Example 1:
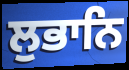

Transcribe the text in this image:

ਲੁਭਾਨਿ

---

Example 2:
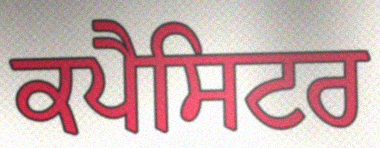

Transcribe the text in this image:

ਕਪੈਸਿਟਰ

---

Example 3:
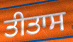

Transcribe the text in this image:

ਤੀਤਾਸ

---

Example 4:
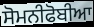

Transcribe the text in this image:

ਸੋਮਨੀਫੋਬੀਆ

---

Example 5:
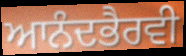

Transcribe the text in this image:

ਆਨੰਦਭੈਰਵੀ